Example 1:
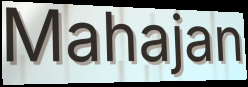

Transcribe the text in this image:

Mahajan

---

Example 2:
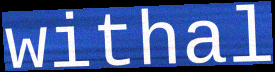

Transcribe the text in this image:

withal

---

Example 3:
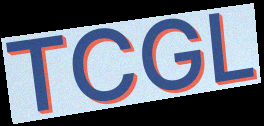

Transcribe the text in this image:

TCGL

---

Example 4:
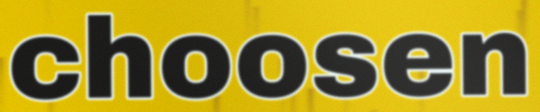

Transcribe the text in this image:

choosen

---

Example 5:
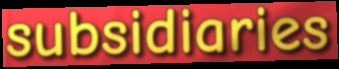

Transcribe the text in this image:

subsidiaries